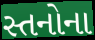
સ્તનોના